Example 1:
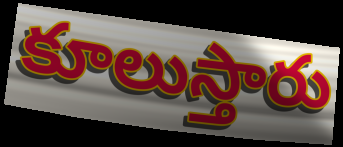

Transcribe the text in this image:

కూలుస్తారు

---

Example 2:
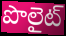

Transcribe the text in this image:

పొలైట్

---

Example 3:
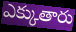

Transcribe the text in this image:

ఎక్కుతారు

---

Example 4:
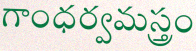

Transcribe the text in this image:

గాంధర్వమస్త్రం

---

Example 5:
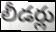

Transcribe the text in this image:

లీడర్లు